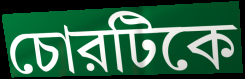
চোরটিকে